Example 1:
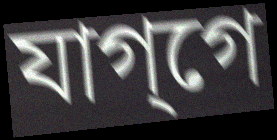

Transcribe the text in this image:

যাগ্‌গে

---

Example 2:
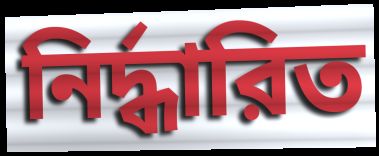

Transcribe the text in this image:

নির্দ্ধারিত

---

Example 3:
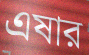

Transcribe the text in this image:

এষার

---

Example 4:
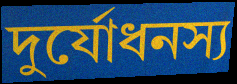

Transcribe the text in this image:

দুর্যোধনস্য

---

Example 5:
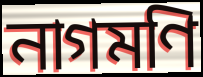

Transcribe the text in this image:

নাগমণি